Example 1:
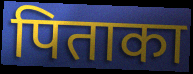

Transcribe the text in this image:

पिताका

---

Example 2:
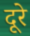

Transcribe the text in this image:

दूरे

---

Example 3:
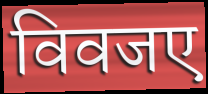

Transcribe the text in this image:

विवजए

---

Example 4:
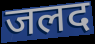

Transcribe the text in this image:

जलद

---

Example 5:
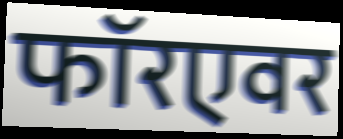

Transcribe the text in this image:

फॉरएवर